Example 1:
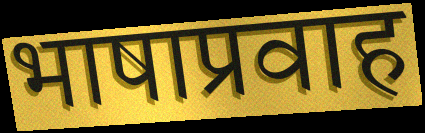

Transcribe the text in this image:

भाषाप्रवाह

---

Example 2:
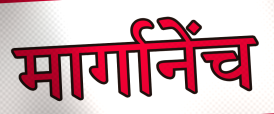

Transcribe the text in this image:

मार्गानेंच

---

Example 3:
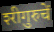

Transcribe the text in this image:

श्रीगुरुचें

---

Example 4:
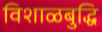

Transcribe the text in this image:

विशाळबुद्धि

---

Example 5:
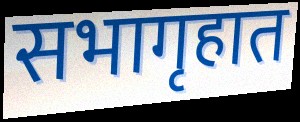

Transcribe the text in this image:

सभागृहात